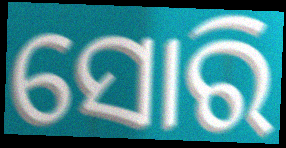
ସୋରି